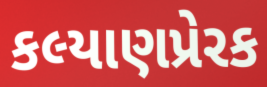
કલ્યાણપ્રેરક